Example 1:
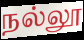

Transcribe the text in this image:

நல்லூ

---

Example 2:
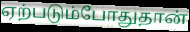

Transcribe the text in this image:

ஏற்படும்போதுதான்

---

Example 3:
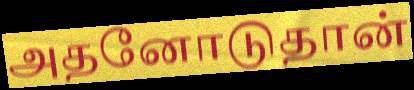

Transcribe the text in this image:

அதனோடுதான்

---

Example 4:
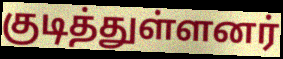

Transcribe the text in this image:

குடித்துள்ளனர்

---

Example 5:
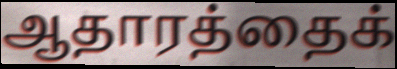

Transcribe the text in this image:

ஆதாரத்தைக்